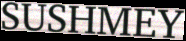
SUSHMEY